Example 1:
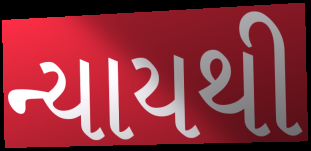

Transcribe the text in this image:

ન્યાયથી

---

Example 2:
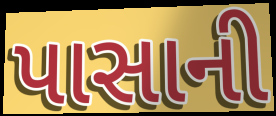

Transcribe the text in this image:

પાસાની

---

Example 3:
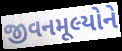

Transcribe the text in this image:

જીવનમૂલ્યોને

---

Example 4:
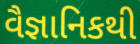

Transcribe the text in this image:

વૈજ્ઞાનિકથી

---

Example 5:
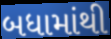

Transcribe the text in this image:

બધામાંથી